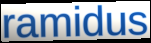
ramidus